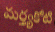
మర్త్యకోటి